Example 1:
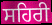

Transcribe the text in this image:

ਸਹਿਰੀ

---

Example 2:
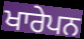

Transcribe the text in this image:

ਖਾਰੇਪਨ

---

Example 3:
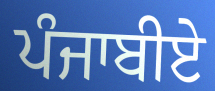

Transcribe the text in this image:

ਪੰਜਾਬੀਏ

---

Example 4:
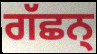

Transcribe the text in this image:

ਗੱਛਨ੍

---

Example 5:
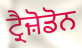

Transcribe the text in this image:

ਟ੍ਰੈਜ਼ੋਡੋਨ